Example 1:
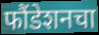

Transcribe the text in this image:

फौंडेशनचा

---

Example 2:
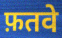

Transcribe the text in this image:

फ़तवे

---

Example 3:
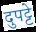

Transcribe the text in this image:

दुपट्टे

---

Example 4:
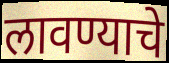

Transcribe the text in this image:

लावण्याचे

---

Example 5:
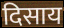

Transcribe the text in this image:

दिसाय